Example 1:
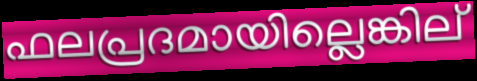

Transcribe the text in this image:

ഫലപ്രദമായില്ലെങ്കില്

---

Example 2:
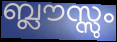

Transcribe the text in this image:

ബ്ലൗസ്സും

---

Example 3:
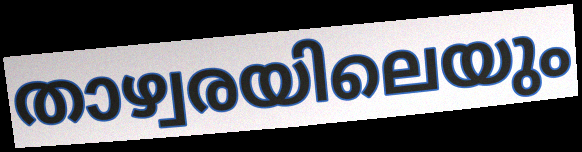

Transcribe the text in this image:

താഴ്വരയിലെയും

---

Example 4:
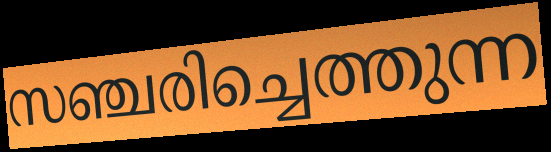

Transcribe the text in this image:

സഞ്ചരിച്ചെത്തുന്ന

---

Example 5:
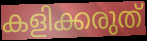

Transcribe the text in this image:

കളിക്കരുത്